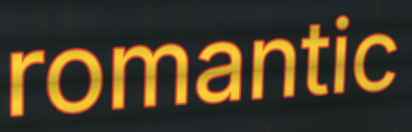
romantic